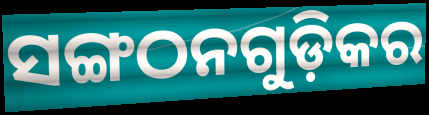
ସଙ୍ଗଠନଗୁଡ଼ିକର